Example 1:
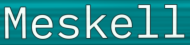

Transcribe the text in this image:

Meskell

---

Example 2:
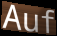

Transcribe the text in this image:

Auf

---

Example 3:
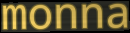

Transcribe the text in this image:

monna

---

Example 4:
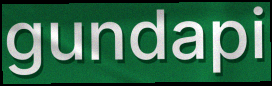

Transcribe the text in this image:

gundapi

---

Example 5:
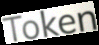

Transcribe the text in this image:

Token